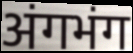
अंगभंग